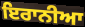
ਇਰਾਨੀਆ